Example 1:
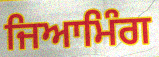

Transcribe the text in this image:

ਜਿਆਮਿੰਗ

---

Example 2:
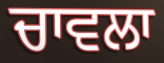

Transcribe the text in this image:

ਚਾਵਲਾ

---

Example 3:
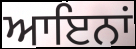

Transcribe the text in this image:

ਆਇਨਾਂ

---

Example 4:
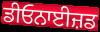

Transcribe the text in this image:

ਡੀਓਨਾਈਜ਼ਡ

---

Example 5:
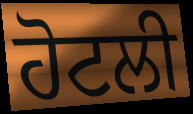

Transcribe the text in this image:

ਹੋਟਲੀ